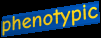
phenotypic